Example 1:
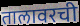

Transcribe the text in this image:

तालावरची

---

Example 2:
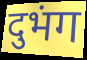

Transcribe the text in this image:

दुभंग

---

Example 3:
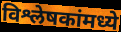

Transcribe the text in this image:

विश्लेषकांमध्ये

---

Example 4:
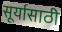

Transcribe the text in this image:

सूर्यासाठी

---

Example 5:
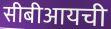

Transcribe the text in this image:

सीबीआयची